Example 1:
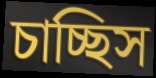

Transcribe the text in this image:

চাচ্ছিস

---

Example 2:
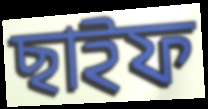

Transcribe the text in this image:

ছাইফ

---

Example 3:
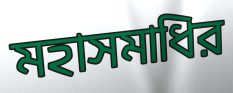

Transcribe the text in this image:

মহাসমাধির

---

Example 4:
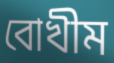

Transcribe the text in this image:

বোখীম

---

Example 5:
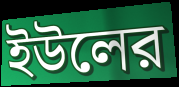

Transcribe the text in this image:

ইউলের